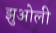
झुओली